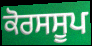
ਕੋਰਸਸੂਪ